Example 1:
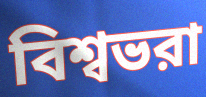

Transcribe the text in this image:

বিশ্বভরা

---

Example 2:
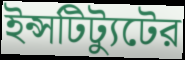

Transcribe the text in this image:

ইন্সটিট্যুটের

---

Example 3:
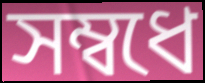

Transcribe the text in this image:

সম্বধে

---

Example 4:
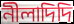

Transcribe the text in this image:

নীলাদিদি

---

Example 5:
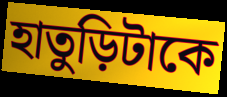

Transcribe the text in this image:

হাতুড়িটাকে